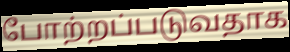
போற்றப்படுவதாக